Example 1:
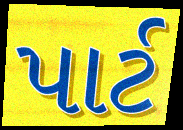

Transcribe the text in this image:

પાર્ટ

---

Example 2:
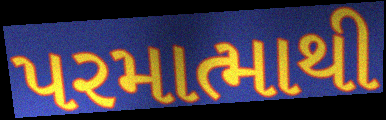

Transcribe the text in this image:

પરમાત્માથી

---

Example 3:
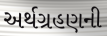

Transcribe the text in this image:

અર્થગ્રહણની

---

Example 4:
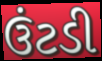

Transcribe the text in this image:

ઉંટડી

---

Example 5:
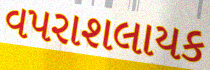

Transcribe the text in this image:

વપરાશલાયક